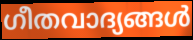
ഗീതവാദ്യങ്ങൾ